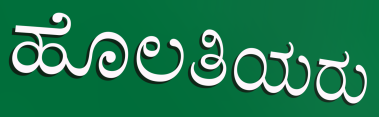
ಹೊಲತಿಯರು